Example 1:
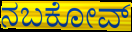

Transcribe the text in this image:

ನಬಕೋವ್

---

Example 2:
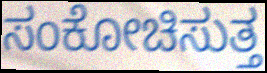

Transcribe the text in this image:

ಸಂಕೋಚಿಸುತ್ತ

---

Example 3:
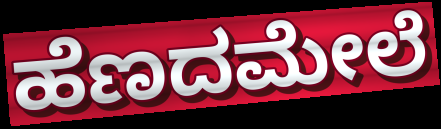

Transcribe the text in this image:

ಹೆಣದಮೇಲೆ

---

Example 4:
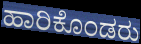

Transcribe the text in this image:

ಹಾರಿಕೊಂಡರು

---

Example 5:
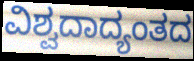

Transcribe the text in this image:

ವಿಶ್ವದಾದ್ಯಂತದ